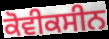
ਕੋਵੀਕਸੀਨ